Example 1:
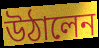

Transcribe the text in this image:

উঠালেন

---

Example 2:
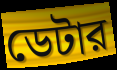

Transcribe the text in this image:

ডেটার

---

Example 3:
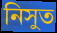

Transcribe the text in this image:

নিসুত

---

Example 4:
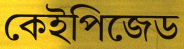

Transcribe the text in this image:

কেইপিজেড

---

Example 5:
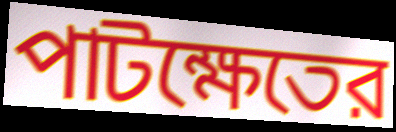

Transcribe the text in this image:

পাটক্ষেতের